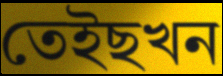
তেইছখন